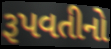
રૂપવતીનો